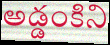
అడ్డంకిని